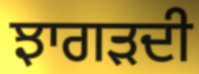
ਝਾਗੜਦੀ